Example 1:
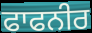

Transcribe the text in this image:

ਫਾਫਨੀਰ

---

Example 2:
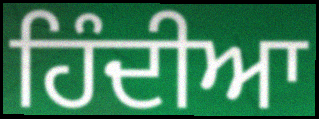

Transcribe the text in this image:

ਹਿੰਦੀਆ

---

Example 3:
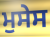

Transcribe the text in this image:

ਮੁਸੇਸ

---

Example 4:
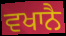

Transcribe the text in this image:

ਵਖਾਨੈ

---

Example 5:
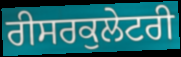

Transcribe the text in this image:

ਰੀਸਰਕੁਲੇਟਰੀ